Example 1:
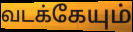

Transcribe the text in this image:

வடக்கேயும்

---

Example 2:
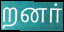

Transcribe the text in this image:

றனர்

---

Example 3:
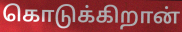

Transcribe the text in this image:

கொடுக்கிறான்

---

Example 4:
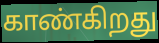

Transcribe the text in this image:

காண்கிறது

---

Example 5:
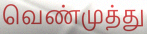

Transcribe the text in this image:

வெண்முத்து